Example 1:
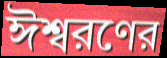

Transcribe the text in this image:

ঈশ্বরণের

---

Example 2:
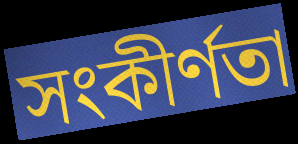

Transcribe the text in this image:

সংকীর্ণতা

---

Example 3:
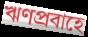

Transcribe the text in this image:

ঋণপ্রবাহে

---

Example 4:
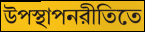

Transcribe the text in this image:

উপস্থাপনরীতিতে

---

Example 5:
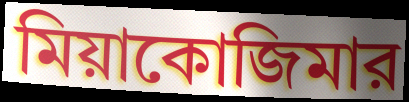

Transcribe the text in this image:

মিয়াকোজিমার